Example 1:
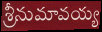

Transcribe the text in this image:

శ్రీనుమావయ్య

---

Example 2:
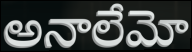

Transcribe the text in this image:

అనాలేమో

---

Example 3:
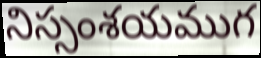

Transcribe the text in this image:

నిస్సంశయముగ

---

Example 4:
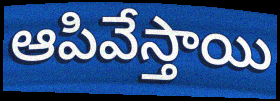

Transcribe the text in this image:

ఆపివేస్తాయి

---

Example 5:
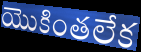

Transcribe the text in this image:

యొకింతలేక